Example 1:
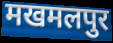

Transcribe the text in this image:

मखमलपुर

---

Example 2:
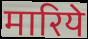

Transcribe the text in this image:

मारिये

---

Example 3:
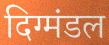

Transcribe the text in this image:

दिग्मंडल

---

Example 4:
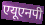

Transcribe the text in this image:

एयूएनपी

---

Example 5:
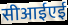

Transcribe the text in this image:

सीआईएई